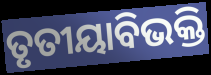
ତୃତୀୟାବିଭକ୍ତି